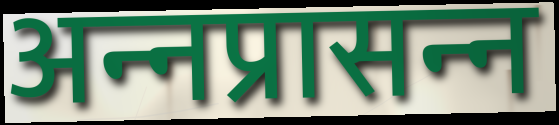
अन्नप्रासन्न